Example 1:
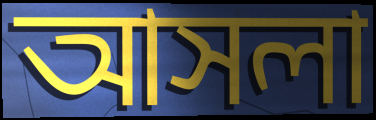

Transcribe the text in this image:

আসলা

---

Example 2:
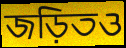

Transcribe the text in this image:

জড়িতও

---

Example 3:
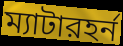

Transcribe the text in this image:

ম্যাটারহর্ন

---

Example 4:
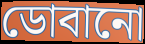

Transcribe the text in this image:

ডোবানো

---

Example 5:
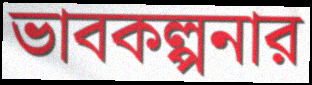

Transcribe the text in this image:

ভাবকল্পনার